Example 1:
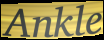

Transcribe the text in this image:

Ankle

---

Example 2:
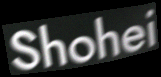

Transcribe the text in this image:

Shohei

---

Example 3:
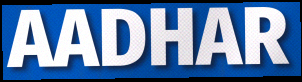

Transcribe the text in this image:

AADHAR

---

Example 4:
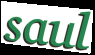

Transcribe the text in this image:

saul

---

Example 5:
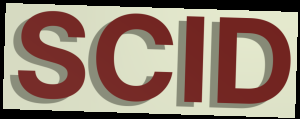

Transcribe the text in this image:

SCID